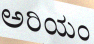
ಅರಿಯಂ